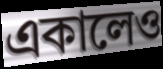
একালেও